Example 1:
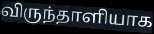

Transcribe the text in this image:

விருந்தாளியாக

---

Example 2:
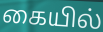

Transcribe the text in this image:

கையில்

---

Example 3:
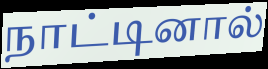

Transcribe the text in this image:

நாட்டினால்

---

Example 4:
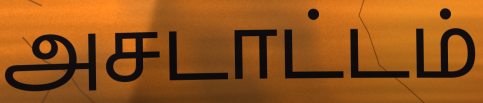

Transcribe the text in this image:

அசடாட்டம்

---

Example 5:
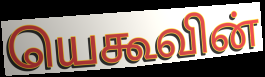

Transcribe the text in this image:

யெகூவின்